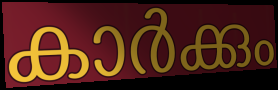
കാർക്കും